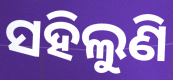
ସହିଲୁଣି